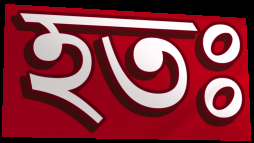
হতঃ